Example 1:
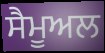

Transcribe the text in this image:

ਸੈਮੂਅਲ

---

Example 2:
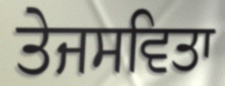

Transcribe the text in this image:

ਤੇਜਸਵਿਤਾ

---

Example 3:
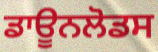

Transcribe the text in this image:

ਡਾਊਨਲੋਡਸ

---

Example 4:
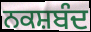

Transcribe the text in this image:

ਨਕਸ਼ਬੰਦ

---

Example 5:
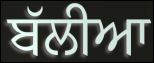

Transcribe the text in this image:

ਬੱਲੀਆ